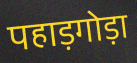
पहाड़गोड़ा